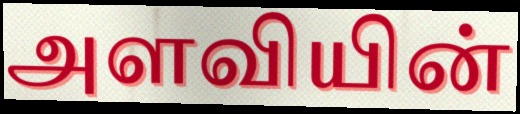
அளவியின்